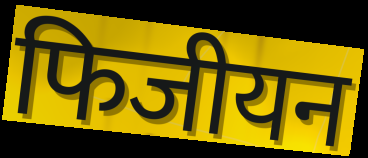
फिजीयन